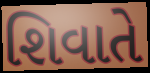
શિવાતે